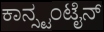
ಕಾನ್ಸ್ಟಂಟೈನ್